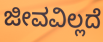
ಜೀವವಿಲ್ಲದೆ